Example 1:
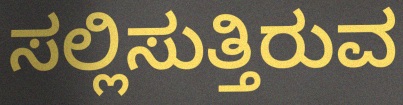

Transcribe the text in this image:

ಸಲ್ಲಿಸುತ್ತಿರುವ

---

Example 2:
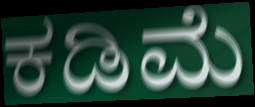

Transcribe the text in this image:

ಕಡಿಮೆ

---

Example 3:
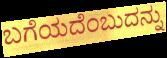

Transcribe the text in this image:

ಬಗೆಯದೆಂಬುದನ್ನು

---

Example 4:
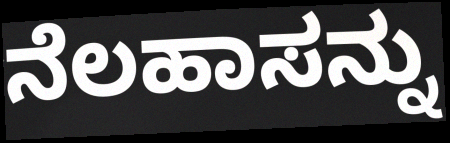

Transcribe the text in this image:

ನೆಲಹಾಸನ್ನು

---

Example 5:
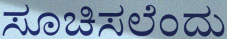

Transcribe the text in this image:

ಸೂಚಿಸಲೆಂದು